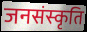
जनसंस्कृति